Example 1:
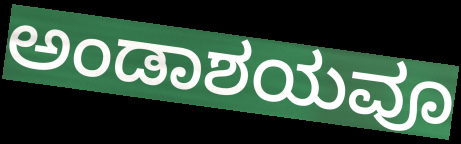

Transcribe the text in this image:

ಅಂಡಾಶಯವೂ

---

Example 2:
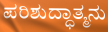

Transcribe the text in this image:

ಪರಿಶುದ್ಧಾತ್ಮನು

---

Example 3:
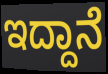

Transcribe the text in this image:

ಇದ್ದಾನೆ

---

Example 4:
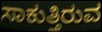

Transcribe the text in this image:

ಸಾಕುತ್ತಿರುವ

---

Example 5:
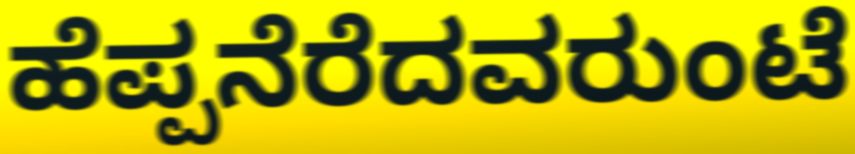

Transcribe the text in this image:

ಹೆಪ್ಪನೆರೆದವರುಂಟೆ